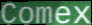
Comex